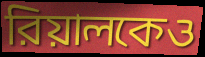
রিয়ালকেও